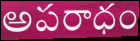
అపరాధం